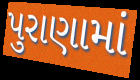
પુરાણામાં